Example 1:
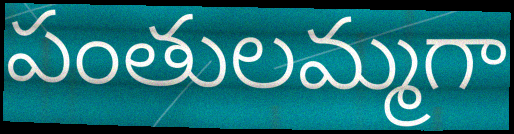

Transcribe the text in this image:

పంతులమ్మగా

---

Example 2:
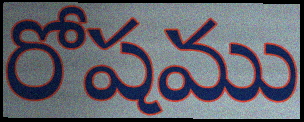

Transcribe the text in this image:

రోషము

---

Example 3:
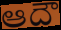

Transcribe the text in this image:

ఆదౌ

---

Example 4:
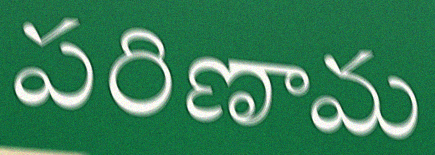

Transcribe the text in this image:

పరిణామ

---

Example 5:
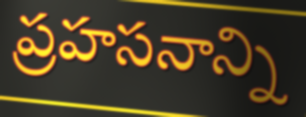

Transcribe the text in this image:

ప్రహసనాన్ని